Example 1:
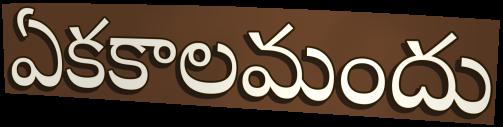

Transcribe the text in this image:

ఏకకాలమందు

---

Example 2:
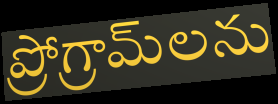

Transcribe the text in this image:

ప్రోగ్రామ్‌లను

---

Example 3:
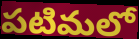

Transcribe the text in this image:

పటిమలో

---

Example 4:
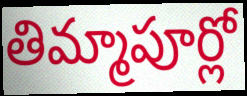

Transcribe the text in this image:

తిమ్మాపూర్లో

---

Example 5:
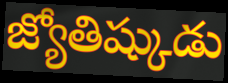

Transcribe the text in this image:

జ్యోతిష్కుడు